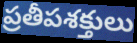
ప్రతీపశక్తులు